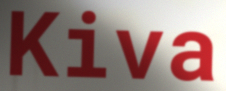
Kiva